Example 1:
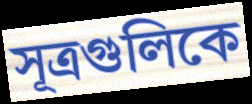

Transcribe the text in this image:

সূত্রগুলিকে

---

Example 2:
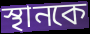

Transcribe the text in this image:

স্থানকে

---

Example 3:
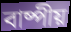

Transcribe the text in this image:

বাষ্পীয়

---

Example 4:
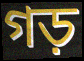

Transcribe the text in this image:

গড়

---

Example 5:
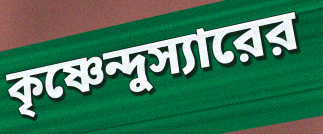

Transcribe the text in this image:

কৃষ্ণেন্দুস্যারের